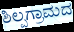
ಶಿಲ್ಪಗ್ರಾಮದ